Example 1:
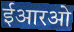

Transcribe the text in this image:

ईआरओ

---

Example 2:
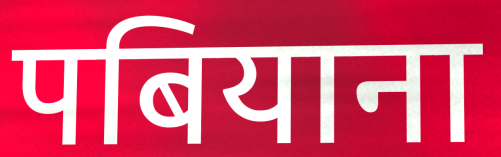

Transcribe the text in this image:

पबियाना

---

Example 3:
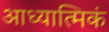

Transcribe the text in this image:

आध्यात्मिकं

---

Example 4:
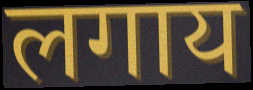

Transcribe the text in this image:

लगाय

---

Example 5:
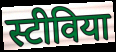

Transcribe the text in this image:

स्टीविया